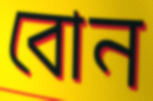
বোন